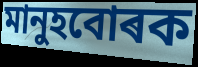
মানুহবোৰক